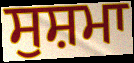
ਸੁਸ਼ਮਾ